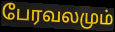
பேரவலமும்